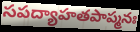
సపద్యాహతపాప్మనః